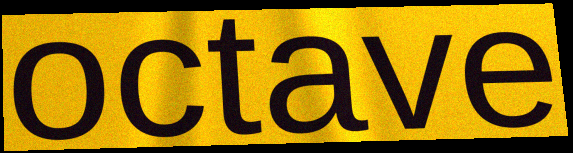
octave